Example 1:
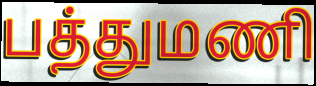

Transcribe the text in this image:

பத்துமணி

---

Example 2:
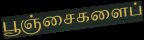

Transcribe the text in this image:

பூஞ்சைகளைப்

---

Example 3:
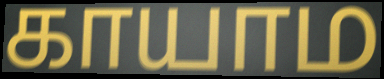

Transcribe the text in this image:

காயாம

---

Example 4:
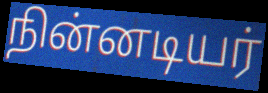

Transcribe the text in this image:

நின்னடியர்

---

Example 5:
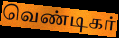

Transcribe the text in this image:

வெண்டிகர்